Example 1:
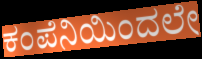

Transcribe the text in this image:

ಕಂಪೆನಿಯಿಂದಲೇ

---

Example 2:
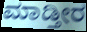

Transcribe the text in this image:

ಮಾಡ್ತೀರ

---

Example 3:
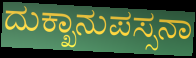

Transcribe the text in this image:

ದುಕ್ಖಾನುಪಸ್ಸನಾ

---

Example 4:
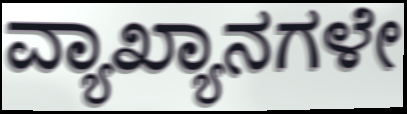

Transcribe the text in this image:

ವ್ಯಾಖ್ಯಾನಗಳೇ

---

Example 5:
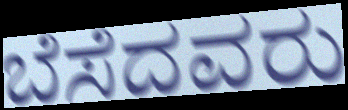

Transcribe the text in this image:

ಬೆಸೆದವರು